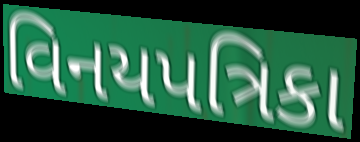
વિનયપત્રિકા